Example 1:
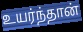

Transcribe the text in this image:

உயர்ந்தான்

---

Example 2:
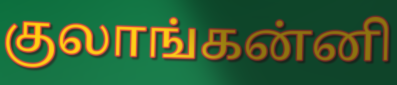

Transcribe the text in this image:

குலாங்கன்னி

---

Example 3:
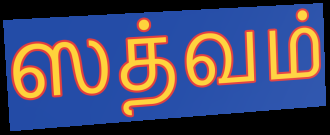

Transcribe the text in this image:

ஸத்வம்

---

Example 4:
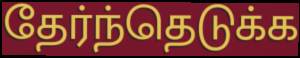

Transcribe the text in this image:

தேர்ந்தெடுக்க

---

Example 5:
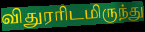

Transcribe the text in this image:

விதுரரிடமிருந்து